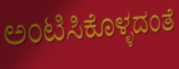
ಅಂಟಿಸಿಕೊಳ್ಳದಂತೆ